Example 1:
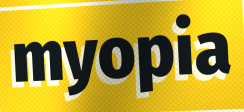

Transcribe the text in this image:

myopia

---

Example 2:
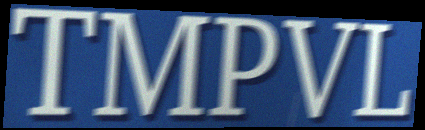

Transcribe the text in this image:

TMPVL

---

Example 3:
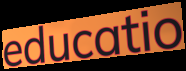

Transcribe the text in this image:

educatio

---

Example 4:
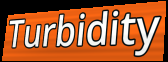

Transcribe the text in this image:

Turbidity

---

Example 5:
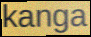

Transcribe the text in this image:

kanga